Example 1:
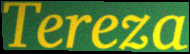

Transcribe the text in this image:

Tereza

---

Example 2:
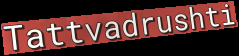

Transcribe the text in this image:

Tattvadrushti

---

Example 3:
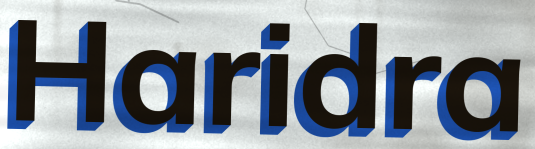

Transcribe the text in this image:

Haridra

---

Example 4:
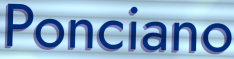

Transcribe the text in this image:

Ponciano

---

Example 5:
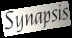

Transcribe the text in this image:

Synapsis